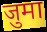
जुमा